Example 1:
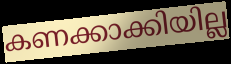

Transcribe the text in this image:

കണക്കാക്കിയില്ല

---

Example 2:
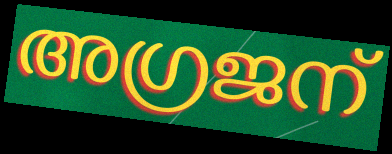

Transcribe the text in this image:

അഗ്രജന്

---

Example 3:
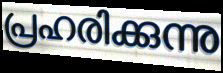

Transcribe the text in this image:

പ്രഹരിക്കുന്നു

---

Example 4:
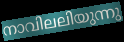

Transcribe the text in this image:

നാവിലലിയുന്നു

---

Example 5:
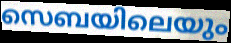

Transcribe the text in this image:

സെബയിലെയും